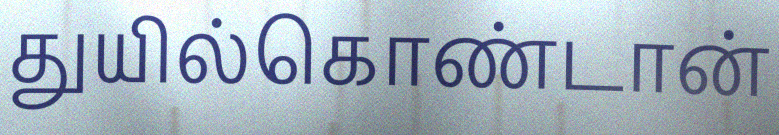
துயில்கொண்டான்